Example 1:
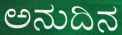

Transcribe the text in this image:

ಅನುದಿನ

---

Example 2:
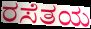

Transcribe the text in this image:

ರಸೆತಯ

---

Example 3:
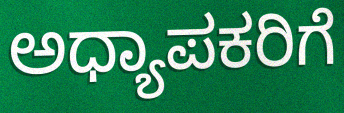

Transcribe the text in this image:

ಅಧ್ಯಾಪಕರಿಗೆ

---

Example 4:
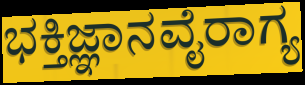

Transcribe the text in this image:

ಭಕ್ತಿಜ್ಞಾನವೈರಾಗ್ಯ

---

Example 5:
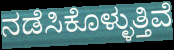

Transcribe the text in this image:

ನಡೆಸಿಕೊಳ್ಳುತ್ತಿವೆ